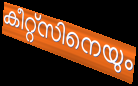
കീറ്റ്സിനെയും